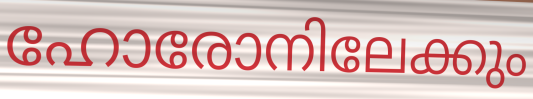
ഹോരോനിലേക്കും